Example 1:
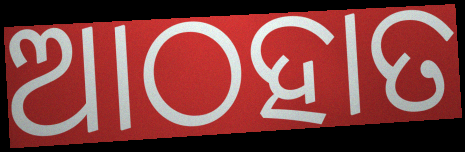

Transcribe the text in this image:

ଆଠହାତ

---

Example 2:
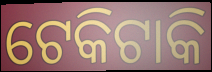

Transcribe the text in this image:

ଟେକିଟାକି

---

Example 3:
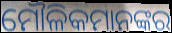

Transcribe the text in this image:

ମୌଳିକମାନଙ୍କର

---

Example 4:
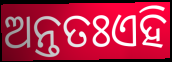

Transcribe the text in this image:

ଅନ୍ତତଃଏହି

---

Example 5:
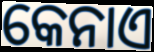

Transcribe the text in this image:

କେନାଏ